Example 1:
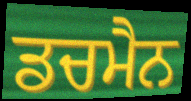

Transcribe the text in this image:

ਡਚਮੈਨ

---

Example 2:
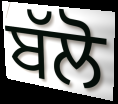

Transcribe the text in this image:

ਬੱਲੋ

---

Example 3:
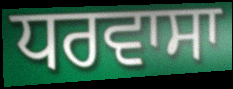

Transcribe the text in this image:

ਧਰਵਾਸਾ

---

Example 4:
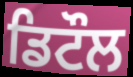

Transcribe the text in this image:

ਡਿਟੌਲ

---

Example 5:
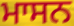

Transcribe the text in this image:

ਮਾਸਨ